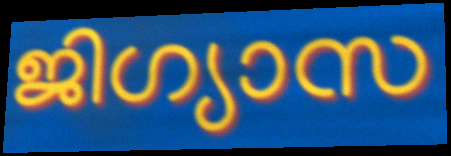
ജിഗ്യാസ